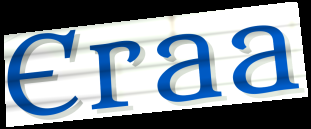
Eraa